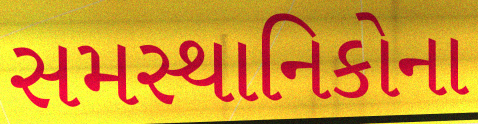
સમસ્થાનિકોના